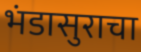
भंडासुराचा